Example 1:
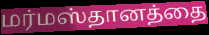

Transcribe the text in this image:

மர்மஸ்தானத்தை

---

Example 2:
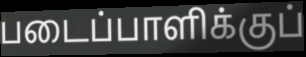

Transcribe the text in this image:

படைப்பாளிக்குப்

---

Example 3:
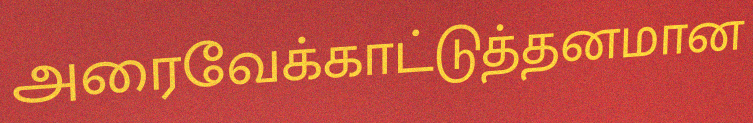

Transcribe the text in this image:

அரைவேக்காட்டுத்தனமான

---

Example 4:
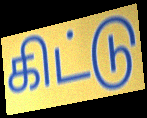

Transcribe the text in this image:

கிட்டு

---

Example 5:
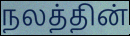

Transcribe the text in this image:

நலத்தின்